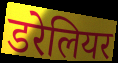
डरेलियर